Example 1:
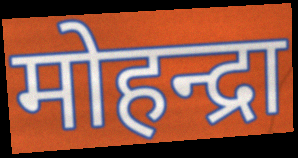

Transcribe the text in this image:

मोहन्द्रा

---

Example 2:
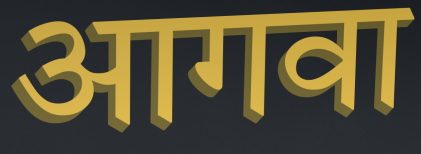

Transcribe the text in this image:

आगवा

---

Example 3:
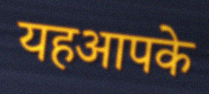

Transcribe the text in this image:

यहआपके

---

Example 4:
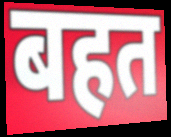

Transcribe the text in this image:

बहत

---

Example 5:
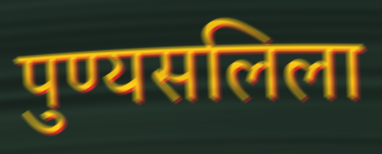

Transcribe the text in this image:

पुण्यसलिला